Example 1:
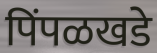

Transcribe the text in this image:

पिंपळखडे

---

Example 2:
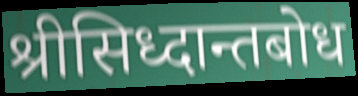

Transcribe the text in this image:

श्रीसिध्दान्तबोध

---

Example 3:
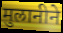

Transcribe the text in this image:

मुलानीने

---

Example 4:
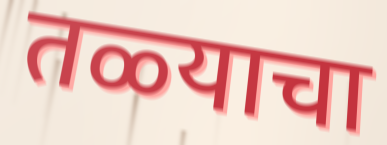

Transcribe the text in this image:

तळ्याचा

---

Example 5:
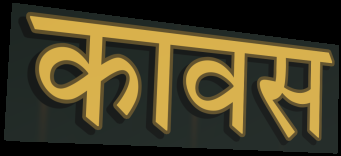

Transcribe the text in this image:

कावस